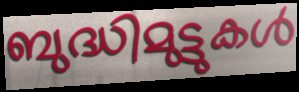
ബുദ്ധിമുട്ടുകൾ